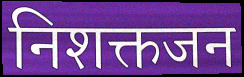
निशक्तजन